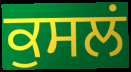
ਕੁਸਲਂ